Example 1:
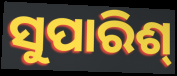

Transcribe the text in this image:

ସୁପାରିଶ୍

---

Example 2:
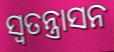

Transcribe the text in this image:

ସ୍ଵତନ୍ତ୍ରାସନ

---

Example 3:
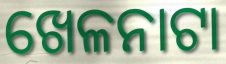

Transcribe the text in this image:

ଖେଳନାଟା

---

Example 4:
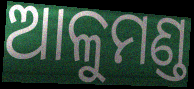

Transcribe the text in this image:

ଆଳୁମଣ୍ଡ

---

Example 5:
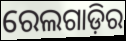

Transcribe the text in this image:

ରେଲଗାଡ଼ିର